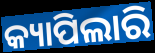
କ୍ୟାପିଲାରି